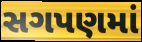
સગપણમાં